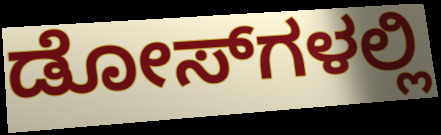
ಡೋಸ್‌ಗಳಲ್ಲಿ